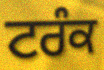
ਟਰੰਕ